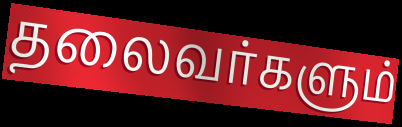
தலைவர்களும்